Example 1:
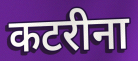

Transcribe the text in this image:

कटरीना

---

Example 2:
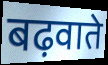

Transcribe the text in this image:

बढ़वाते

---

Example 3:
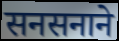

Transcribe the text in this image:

सनसनाने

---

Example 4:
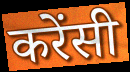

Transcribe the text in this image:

करेंसी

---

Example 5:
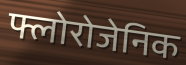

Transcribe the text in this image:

फ्लोरोजेनिक